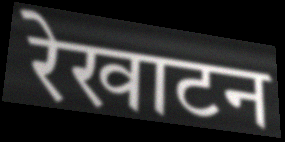
रेखाटन